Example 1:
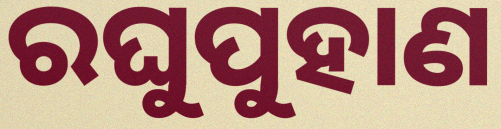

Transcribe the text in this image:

ରଘୁପୁହାଣ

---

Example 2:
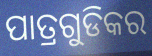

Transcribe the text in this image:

ପାତ୍ରଗୁଡିକର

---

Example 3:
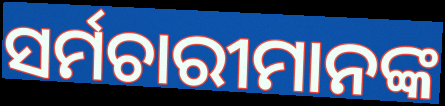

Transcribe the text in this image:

ସର୍ମଚାରୀମାନଙ୍କ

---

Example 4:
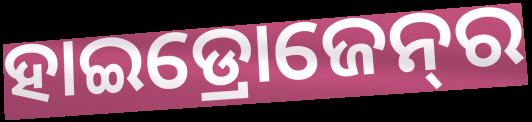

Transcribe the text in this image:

ହାଇଡ୍ରୋଜେନ୍‌ର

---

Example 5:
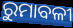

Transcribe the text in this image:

ରୁମାବଳୀ